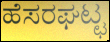
ಹೆಸರಘಟ್ಟ